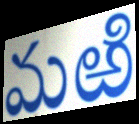
మఱి